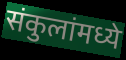
संकुलांमध्ये